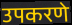
उपकरणे